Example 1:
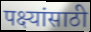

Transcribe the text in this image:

पक्ष्यांसाठी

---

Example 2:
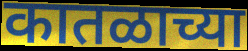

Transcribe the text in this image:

कातळाच्या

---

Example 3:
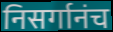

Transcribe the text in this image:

निसर्गानंच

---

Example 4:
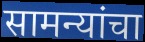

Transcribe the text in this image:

सामन्यांचा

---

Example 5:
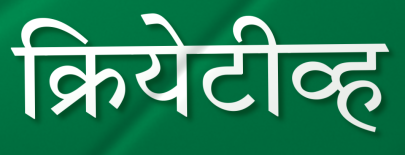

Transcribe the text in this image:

क्रियेटीव्ह